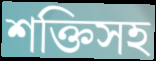
শক্তিসহ